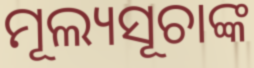
ମୂଲ୍ୟସୂଚାଙ୍କ